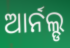
ଆର୍ନଲ୍ଡ